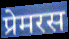
प्रेमरस